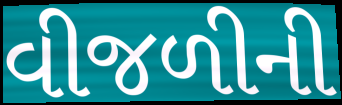
વીજળીની